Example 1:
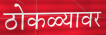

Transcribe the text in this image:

ठोकळ्यावर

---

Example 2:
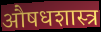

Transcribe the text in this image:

औषधशास्त्र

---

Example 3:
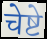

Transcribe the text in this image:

चेष्टे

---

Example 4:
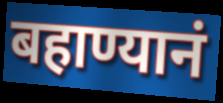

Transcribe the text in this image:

बहाण्यानं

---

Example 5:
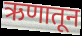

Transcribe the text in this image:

ऋणातून